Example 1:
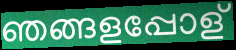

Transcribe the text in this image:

ഞങ്ങളപ്പോള്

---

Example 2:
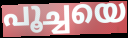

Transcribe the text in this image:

പൂച്ചയെ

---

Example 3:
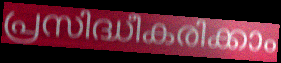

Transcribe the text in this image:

പ്രസിദ്ധീകരിക്കാം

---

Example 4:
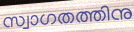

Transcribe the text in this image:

സ്വാഗതത്തിനു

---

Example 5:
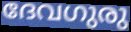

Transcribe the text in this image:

ദേവഗുരു